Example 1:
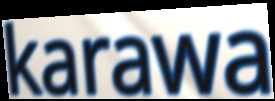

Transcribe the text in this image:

karawa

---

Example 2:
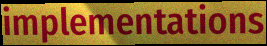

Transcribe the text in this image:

implementations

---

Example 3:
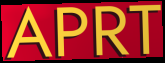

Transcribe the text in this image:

APRT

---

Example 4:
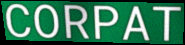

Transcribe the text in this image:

CORPAT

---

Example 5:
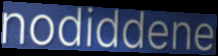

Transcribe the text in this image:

nodiddene